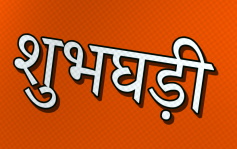
शुभघड़ी